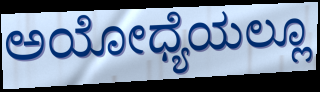
ಅಯೋಧ್ಯೆಯಲ್ಲೂ